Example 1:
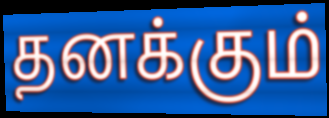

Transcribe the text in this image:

தனக்கும்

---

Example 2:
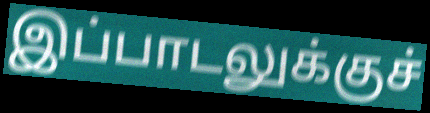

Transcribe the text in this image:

இப்பாடலுக்குச்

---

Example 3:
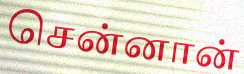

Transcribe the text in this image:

சென்னான்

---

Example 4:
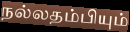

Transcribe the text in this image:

நல்லதம்பியும்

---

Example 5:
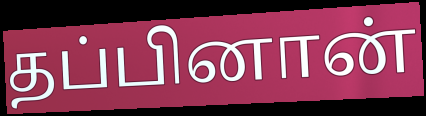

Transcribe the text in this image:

தப்பினான்